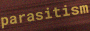
parasitism